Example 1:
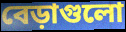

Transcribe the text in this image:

বেড়াগুলো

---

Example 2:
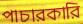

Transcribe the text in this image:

পাচারকারি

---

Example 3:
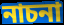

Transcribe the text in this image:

নাচনা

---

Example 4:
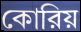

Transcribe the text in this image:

কোরিয়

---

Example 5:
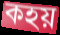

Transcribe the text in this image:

কহয়